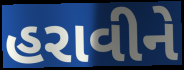
હરાવીને